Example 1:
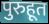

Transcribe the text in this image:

पुरुहूत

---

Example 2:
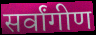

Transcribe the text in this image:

सर्वांगीण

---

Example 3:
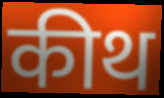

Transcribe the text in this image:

कीथ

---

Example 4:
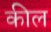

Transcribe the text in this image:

कील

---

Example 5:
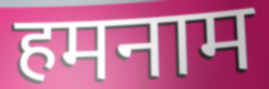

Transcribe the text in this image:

हमनाम